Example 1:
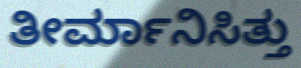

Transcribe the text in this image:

ತೀರ್ಮಾನಿಸಿತ್ತು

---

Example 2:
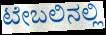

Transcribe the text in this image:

ಟೇಬಲಿನಲ್ಲಿ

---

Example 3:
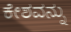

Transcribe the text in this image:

ಕೇಶವನ್ನು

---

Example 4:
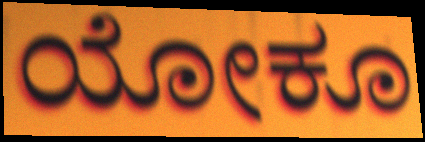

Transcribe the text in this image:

ಯೋಕೂ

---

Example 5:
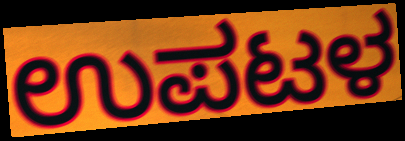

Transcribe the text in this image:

ಉಪಟಳ